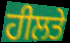
ਹੀਲਤੇ